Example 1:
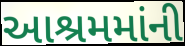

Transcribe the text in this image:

આશ્રમમાંની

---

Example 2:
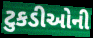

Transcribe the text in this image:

ટુકડીઓની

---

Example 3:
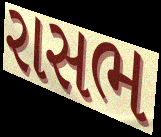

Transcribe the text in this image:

રાસભ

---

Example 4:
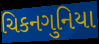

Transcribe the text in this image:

ચિકનગુનિયા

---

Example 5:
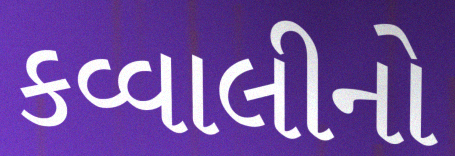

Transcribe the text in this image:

કવ્વાલીનો